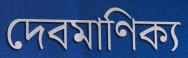
দেবমাণিক্য